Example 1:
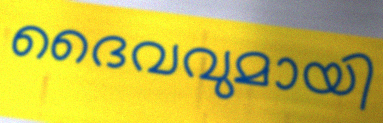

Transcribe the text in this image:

ദൈവവുമായി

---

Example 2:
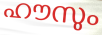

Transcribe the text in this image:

ഹൗസും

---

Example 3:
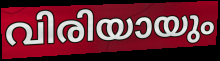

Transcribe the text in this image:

വിരിയായും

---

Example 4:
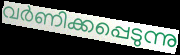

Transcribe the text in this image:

വർണിക്കപ്പെടുന്നു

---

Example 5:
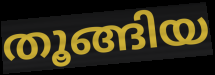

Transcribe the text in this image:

തൂങ്ങിയ